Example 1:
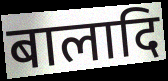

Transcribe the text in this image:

बालादि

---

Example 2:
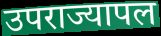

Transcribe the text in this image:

उपराज्यापल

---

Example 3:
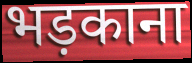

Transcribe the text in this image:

भड़काना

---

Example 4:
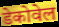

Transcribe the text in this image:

डेकोवेल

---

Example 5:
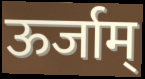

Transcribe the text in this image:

ऊर्जाम्